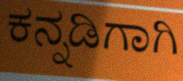
ಕನ್ನಡಿಗಾಗಿ